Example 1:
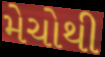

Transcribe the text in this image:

મેચોથી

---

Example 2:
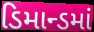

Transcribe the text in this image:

ડિમાન્ડમાં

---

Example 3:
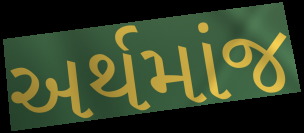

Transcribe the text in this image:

અર્થમાંજ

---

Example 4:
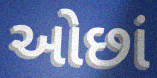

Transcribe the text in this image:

ઓછાં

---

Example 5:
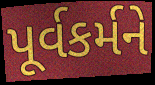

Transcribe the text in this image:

પૂર્વકર્મને